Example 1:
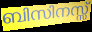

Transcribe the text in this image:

ബിസിനസ്സ്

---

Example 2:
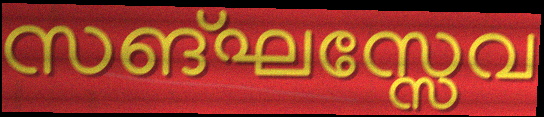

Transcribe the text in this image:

സങ്ഘസ്സേവ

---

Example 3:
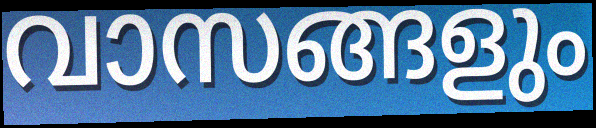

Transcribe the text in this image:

വാസങ്ങളും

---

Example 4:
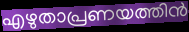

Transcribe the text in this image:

എഴുതാപ്രണയത്തിൻ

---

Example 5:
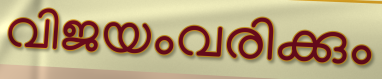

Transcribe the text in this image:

വിജയംവരിക്കും